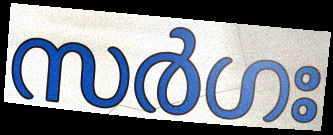
സർഗഃ